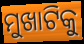
ମୁଖାଟିକୁ